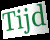
Tijd